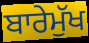
ਬਾਰੇਮੁੱਖ